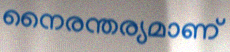
നൈരന്തര്യമാണ്